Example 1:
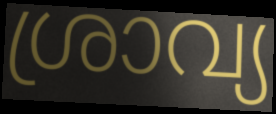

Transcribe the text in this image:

ശ്രാവ്യ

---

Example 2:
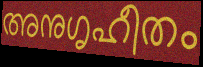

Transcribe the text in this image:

അനുഗൃഹീതം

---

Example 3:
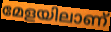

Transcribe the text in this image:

മേളയിലാണ്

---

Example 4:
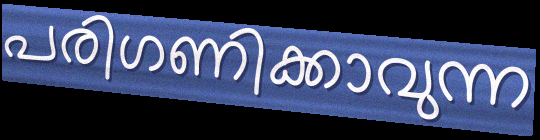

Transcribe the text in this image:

പരിഗണിക്കാവുന്ന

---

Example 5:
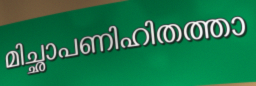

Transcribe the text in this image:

മിച്ഛാപണിഹിതത്താ